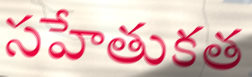
సహేతుకత